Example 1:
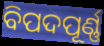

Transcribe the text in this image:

ବିପଦପୂର୍ଣ୍ଣ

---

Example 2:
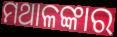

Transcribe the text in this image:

ମଥାଳଙ୍କାର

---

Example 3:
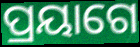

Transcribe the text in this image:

ପ୍ରୟାଗେ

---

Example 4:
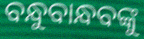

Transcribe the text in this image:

ବନ୍ଧୁବାନ୍ଧବଙ୍କୁ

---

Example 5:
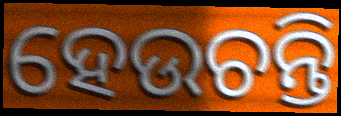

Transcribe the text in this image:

ହେଉଚନ୍ତି